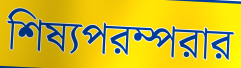
শিষ্যপরম্পরার